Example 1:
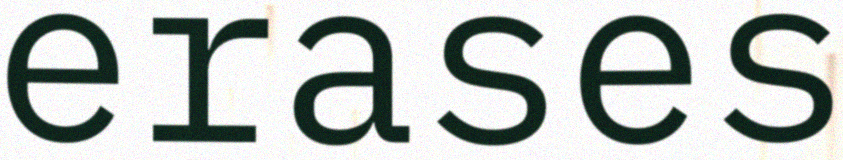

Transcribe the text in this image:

erases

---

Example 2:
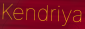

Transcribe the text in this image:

Kendriya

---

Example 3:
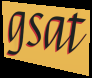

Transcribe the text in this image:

gsat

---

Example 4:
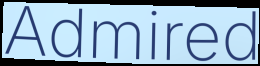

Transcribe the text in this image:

Admired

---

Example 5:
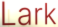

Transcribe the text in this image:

Lark